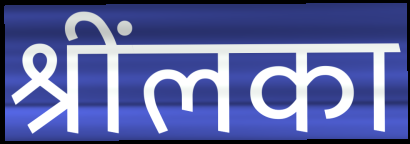
श्रींलका